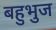
बहुभुज